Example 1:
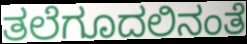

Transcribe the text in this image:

ತಲೆಗೂದಲಿನಂತೆ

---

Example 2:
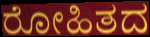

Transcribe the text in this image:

ರೋಹಿತದ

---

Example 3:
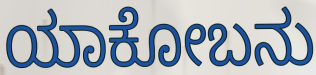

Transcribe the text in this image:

ಯಾಕೋಬನು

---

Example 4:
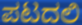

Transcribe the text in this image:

ಪಟದಲಿ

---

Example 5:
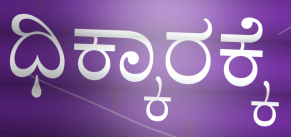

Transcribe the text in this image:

ಧಿಕ್ಕಾರಕ್ಕೆ